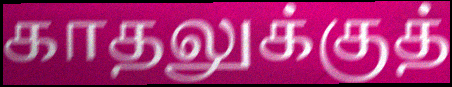
காதலுக்குத்